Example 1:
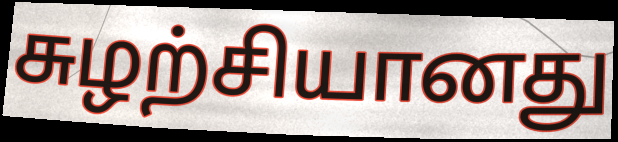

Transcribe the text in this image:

சுழற்சியானது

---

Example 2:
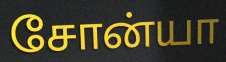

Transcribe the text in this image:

சோன்யா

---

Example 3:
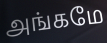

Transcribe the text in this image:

அங்கமே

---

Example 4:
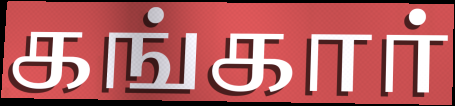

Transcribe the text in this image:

கங்கார்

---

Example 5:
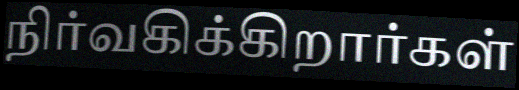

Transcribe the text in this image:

நிர்வகிக்கிறார்கள்